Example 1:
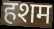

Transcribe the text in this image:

हशम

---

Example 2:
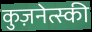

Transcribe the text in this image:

कुज़नेत्स्की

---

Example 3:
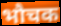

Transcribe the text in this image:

भौचक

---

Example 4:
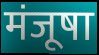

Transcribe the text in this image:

मंजूषा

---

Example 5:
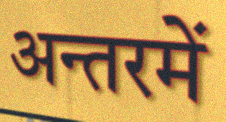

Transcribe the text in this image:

अन्तरमें